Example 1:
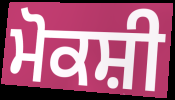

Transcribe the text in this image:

ਮੋਕਸ਼ੀ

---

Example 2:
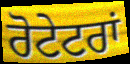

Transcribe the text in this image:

ਰੋਟੇਟਰਾਂ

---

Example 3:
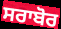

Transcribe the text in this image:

ਸਰਾਬੋਰ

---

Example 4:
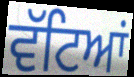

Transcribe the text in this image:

ਵੱਟਿਆਂ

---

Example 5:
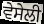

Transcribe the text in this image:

ਵੇਸੇਲੀ